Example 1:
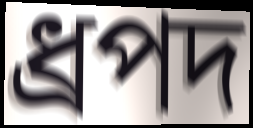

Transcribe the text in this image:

ধ্রপদ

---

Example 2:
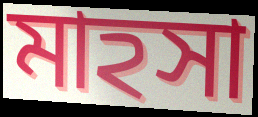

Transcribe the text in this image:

মাহসা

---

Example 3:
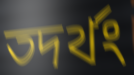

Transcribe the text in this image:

তদর্থং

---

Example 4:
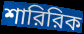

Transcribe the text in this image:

শারিরিক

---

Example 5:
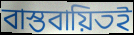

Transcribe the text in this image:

বাস্তবায়িতই